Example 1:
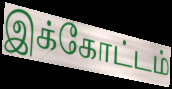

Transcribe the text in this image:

இக்கோட்டம்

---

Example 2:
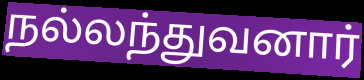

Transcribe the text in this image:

நல்லந்துவனார்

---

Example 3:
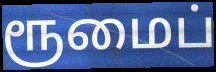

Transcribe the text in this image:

ரூமைப்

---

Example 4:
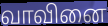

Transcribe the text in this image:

வாவினை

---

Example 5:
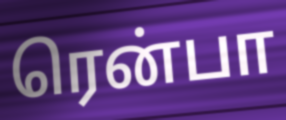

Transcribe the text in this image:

ரென்பா